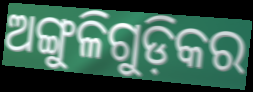
ଅଙ୍ଗୁଳିଗୁଡ଼ିକର